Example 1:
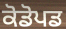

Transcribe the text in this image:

ਕੋਡੋਪਡ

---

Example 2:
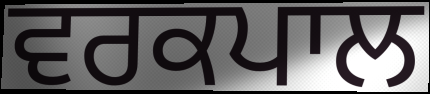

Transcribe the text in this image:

ਵਰਕਪਾਲ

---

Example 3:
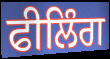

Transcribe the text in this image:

ਫੀਲਿੰਗ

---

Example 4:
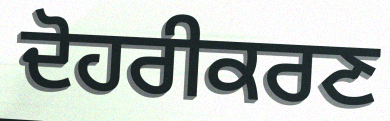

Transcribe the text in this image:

ਦੋਹਰੀਕਰਣ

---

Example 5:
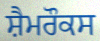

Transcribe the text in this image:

ਸ਼ੈਮਰੌਕਸ